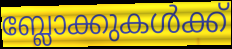
ബ്ലോക്കുകൾക്ക്